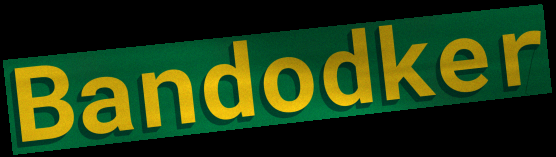
Bandodker